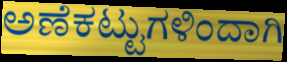
ಅಣೆಕಟ್ಟುಗಳಿಂದಾಗಿ